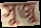
সুজু